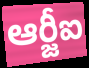
ఆర్జీఐ